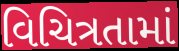
વિચિત્રતામાં